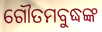
ଗୌତମବୁଦ୍ଧଙ୍କ